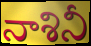
నాశినీ